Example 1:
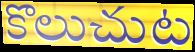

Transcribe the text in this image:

కొలుచుట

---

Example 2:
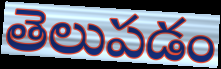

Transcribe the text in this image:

తెలుపడం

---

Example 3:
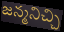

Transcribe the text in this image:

జన్మనిచ్చి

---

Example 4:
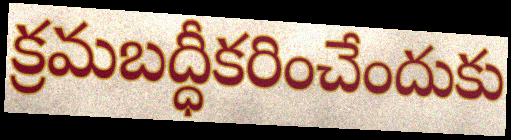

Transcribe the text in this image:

క్రమబద్ధీకరించేందుకు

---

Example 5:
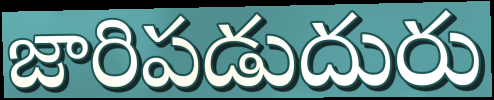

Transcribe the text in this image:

జారిపడుదురు